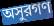
অসুরগণ